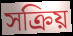
সক্রিয়